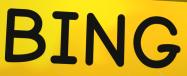
BING